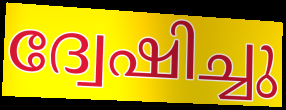
ദ്വേഷിച്ചു